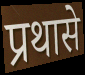
प्रथासे